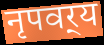
नृपवर्य